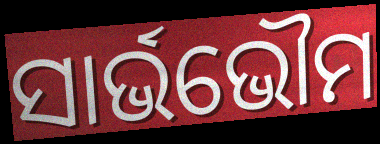
ସାର୍ଭଭୌମ